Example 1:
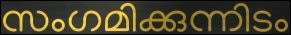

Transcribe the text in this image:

സംഗമിക്കുന്നിടം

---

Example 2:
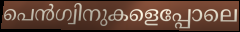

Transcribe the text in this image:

പെൻഗ്വിനുകളെപ്പോലെ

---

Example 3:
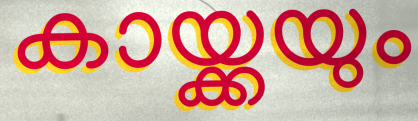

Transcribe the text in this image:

കായ്ക്കയും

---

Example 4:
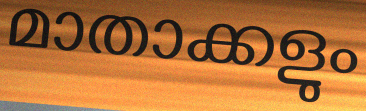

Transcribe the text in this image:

മാതാക്കളും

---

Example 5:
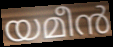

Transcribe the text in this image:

യമീൻ